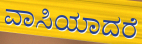
ವಾಸಿಯಾದರೆ